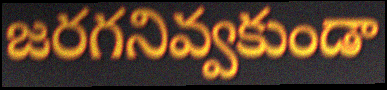
జరగనివ్వకుండా